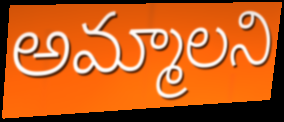
అమ్మాలని